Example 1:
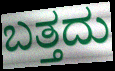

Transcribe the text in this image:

ಬತ್ತದು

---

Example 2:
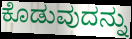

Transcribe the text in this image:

ಕೊಡುವುದನ್ನು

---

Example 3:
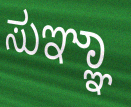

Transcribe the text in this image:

ಸುಞ್ಞಾ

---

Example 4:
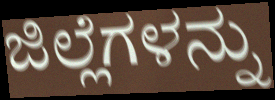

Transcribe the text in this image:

ಜಿಲ್ಲೆಗಳನ್ನು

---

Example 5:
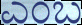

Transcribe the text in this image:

ಎಂಬ